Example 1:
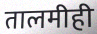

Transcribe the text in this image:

तालमीही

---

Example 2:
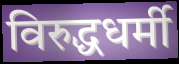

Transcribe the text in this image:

विरुद्धधर्मी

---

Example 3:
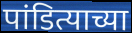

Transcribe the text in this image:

पांडित्याच्या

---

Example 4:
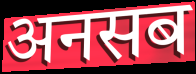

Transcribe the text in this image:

अनसब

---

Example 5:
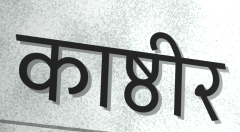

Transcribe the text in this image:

काष्ठीर